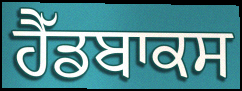
ਹੈੱਡਬਾਕਸ